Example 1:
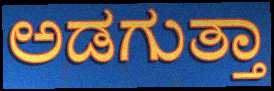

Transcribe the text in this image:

ಅಡಗುತ್ತಾ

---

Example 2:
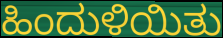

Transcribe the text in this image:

ಹಿಂದುಳಿಯಿತು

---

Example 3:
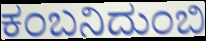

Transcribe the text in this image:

ಕಂಬನಿದುಂಬಿ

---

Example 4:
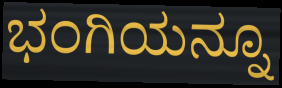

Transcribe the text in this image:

ಭಂಗಿಯನ್ನೂ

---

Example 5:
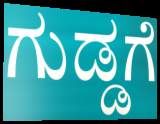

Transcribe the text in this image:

ಗುಡ್ಡಗೆ